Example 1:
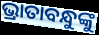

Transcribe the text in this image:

ଭ୍ରାତାବନ୍ଧୁଙ୍କୁ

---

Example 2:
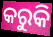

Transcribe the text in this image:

କରୁକି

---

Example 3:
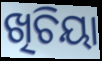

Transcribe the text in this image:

ଖିଚିୟା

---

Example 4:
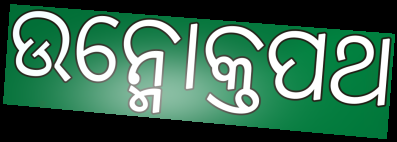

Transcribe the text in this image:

ଉନ୍ମୋକ୍ତପଥ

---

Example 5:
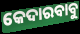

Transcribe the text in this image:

କେଦାରବାବୁ